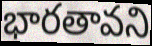
భారతావని